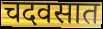
चदवसात